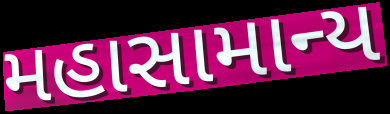
મહાસામાન્ય